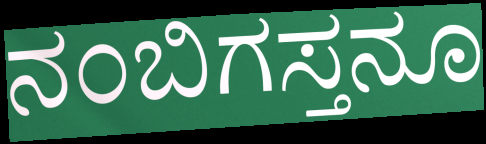
ನಂಬಿಗಸ್ತನೂ